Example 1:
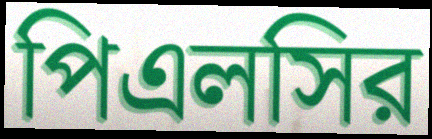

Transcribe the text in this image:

পিএলসির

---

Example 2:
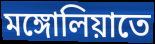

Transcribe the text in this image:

মঙ্গোলিয়াতে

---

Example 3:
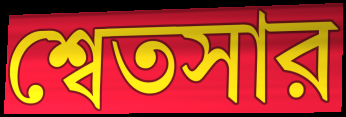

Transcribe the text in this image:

শ্বেতসার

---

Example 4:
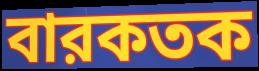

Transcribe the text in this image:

বারকতক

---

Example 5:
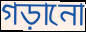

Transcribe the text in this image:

গড়ানো